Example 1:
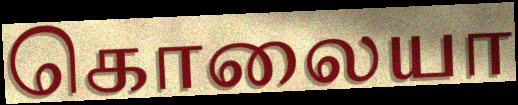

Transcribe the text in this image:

கொலையா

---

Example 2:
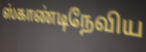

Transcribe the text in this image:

ஸ்காண்டிநேவிய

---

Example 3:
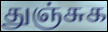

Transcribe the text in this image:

துஞ்சுக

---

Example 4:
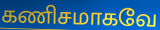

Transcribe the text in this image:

கணிசமாகவே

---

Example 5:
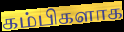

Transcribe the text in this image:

கம்பிகளாக